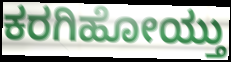
ಕರಗಿಹೋಯ್ತು